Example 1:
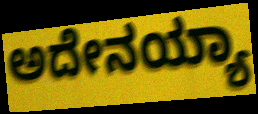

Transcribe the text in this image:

ಅದೇನಯ್ಯಾ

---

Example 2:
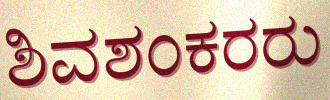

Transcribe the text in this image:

ಶಿವಶಂಕರರು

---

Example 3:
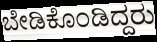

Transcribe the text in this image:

ಬೇಡಿಕೊಂಡಿದ್ದರು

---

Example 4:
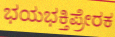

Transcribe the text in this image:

ಭಯಭಕ್ತಿಪ್ರೇರಕ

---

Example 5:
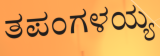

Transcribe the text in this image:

ತಪಂಗಳಯ್ಯ